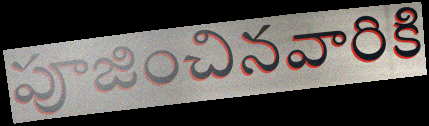
పూజించినవారికి